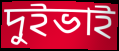
দুইভাই